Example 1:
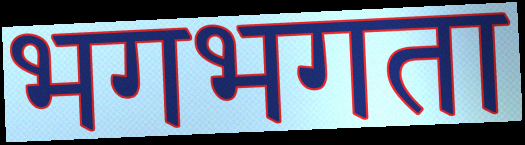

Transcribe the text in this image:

भगभगता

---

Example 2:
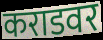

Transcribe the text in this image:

कराडवर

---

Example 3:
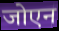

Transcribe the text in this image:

जोएन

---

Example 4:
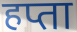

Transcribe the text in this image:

हप्ता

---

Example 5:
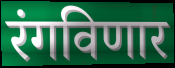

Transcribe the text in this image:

रंगविणार